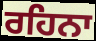
ਰਹਿਨਾ